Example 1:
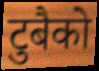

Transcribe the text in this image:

टुबैको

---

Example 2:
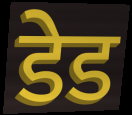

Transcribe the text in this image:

डेड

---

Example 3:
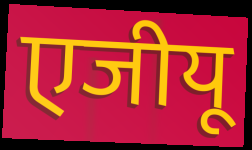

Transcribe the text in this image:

एजीयू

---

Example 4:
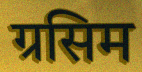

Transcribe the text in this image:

ग्रसिम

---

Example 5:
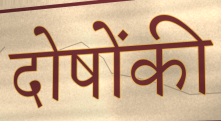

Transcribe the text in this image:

दोषोंकी